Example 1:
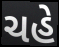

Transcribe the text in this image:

ચહે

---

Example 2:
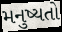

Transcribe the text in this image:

મનુષ્યતો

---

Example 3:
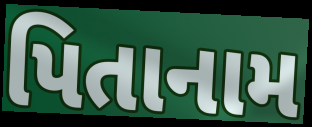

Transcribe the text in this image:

પિતાનામ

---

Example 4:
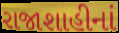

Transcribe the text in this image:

રાજાશાહીનાં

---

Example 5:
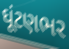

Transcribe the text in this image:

ઘૂંટણભર